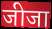
जीजा